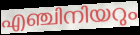
എഞ്ചിനിയറും